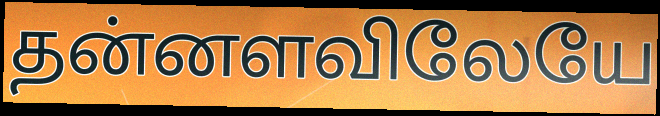
தன்னளவிலேயே